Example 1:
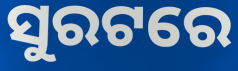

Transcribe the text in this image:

ସୁରଟରେ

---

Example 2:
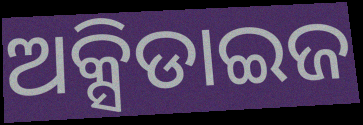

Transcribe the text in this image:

ଅକ୍ସିଡାଇଜ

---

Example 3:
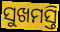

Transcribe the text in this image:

ସୁଖମସ୍ତି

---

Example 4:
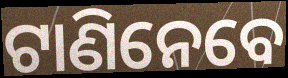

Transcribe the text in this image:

ଟାଣିନେବେ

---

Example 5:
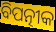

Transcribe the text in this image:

ବିପତ୍ନୀକ